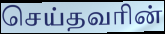
செய்தவரின்